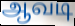
ஆவடி